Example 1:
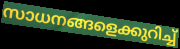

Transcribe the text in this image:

സാധനങ്ങളെക്കുറിച്ച്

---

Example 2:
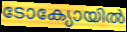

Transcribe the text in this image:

ടോക്യോയിൽ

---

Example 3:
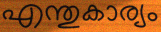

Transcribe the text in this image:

എന്തുകാര്യം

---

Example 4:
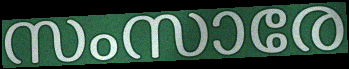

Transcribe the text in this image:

സംസാരേ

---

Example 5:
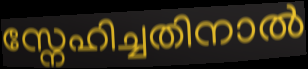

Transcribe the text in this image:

സ്നേഹിച്ചതിനാൽ